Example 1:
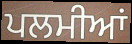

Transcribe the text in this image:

ਪਲਮੀਆਂ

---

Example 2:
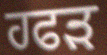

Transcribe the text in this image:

ਹਫੜ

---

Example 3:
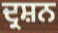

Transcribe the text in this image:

ਦ੍ਰਸ਼ਨ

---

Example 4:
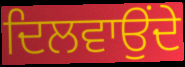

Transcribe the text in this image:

ਦਿਲਵਾਉਂਦੇ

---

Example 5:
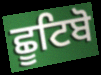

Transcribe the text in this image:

ਛੂਟਿਬੋ